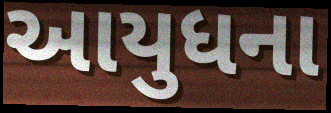
આયુધના